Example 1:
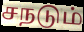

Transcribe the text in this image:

சநடும்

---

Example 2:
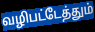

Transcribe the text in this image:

வழிபட்டேத்தும்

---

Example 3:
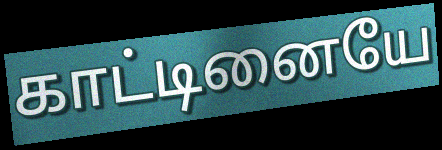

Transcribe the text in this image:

காட்டினையே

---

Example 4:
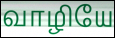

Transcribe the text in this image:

வாழியே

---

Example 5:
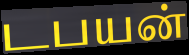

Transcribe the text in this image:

டபயன்